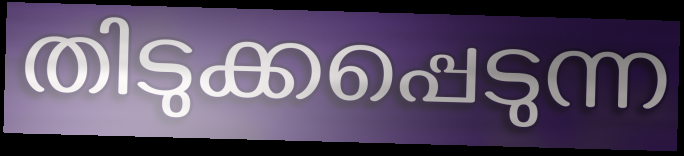
തിടുക്കപ്പെടുന്ന